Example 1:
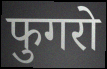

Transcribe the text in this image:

फुगरो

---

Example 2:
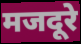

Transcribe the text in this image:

मजदूरे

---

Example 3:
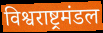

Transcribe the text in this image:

विश्वराष्ट्रमंडल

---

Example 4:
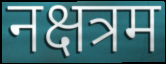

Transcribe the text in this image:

नक्षत्रम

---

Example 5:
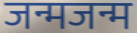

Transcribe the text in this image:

जन्मजन्म